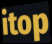
itop